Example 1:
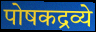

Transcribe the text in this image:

पोषकद्रव्ये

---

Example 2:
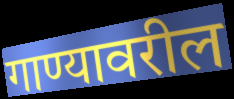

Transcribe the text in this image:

गाण्यावरील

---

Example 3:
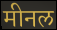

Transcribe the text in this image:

मीनल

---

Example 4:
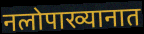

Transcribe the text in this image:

नलोपाख्यानात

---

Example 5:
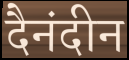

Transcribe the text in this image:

दैनंदीन